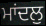
ਮਾਂਦਲੁ